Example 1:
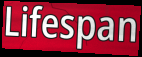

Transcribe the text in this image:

Lifespan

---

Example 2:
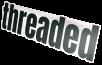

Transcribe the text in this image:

threaded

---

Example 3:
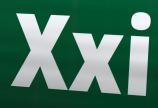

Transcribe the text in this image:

Xxi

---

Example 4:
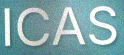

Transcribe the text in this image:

ICAS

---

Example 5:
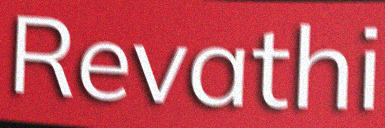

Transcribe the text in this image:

Revathi